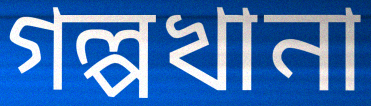
গল্পখানা